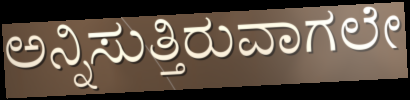
ಅನ್ನಿಸುತ್ತಿರುವಾಗಲೇ